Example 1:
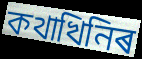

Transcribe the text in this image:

কথাখিনিৰ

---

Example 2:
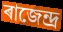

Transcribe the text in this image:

ৰাজেন্দ্ৰ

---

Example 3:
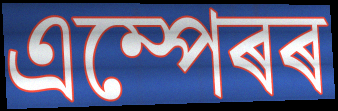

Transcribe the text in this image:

এম্পেৰৰ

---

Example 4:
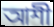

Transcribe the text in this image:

আশী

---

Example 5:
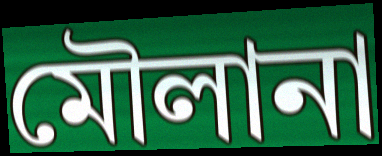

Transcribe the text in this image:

মৌলানা